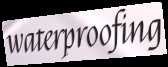
waterproofing